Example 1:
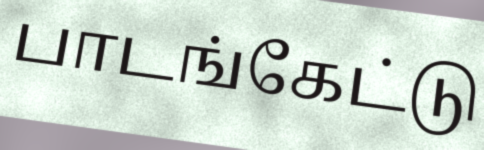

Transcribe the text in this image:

பாடங்கேட்டு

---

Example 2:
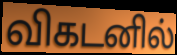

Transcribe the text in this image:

விகடனில்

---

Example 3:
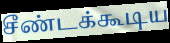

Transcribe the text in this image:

சீண்டக்கூடிய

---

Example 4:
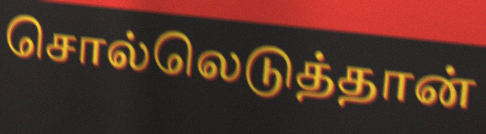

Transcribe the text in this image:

சொல்லெடுத்தான்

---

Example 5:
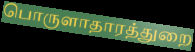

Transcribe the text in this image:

பொருளாதாரத்துறை